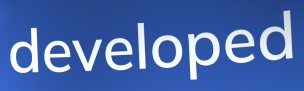
developed